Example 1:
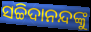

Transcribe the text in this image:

ସଚ୍ଚିଦାନନ୍ଦଙ୍କୁ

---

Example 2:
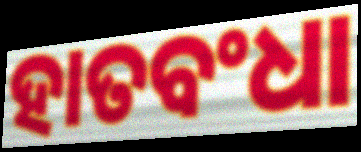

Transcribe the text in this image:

ହାତବଂଧା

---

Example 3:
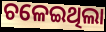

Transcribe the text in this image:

ଚଳେଇଥିଲା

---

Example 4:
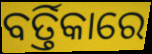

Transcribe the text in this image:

ବର୍ତ୍ତିକାରେ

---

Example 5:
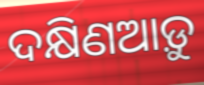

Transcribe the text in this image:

ଦକ୍ଷିଣଆଡ଼ୁ